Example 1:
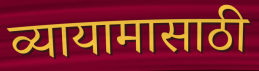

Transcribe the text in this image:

व्यायामासाठी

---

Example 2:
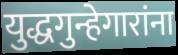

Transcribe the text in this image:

युद्धगुन्हेगारांना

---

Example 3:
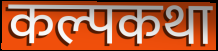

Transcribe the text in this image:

कल्पकथा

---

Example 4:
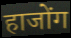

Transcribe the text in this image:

हाजोंग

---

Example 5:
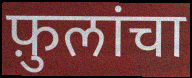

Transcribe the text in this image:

फ़ुलांचा